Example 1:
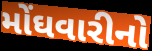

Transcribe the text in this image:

મોંઘવારીનો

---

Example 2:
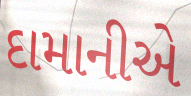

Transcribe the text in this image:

દામાનીએ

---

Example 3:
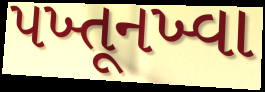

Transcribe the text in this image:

પખ્તૂનખ્વા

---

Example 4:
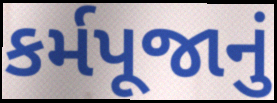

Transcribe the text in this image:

કર્મપૂજાનું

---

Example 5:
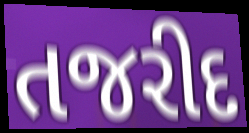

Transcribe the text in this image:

તજરીદ